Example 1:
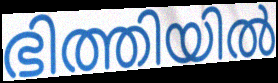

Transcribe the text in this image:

ഭിത്തിയിൽ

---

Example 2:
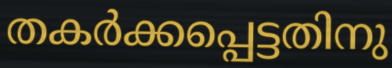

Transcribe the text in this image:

തകർക്കപ്പെട്ടതിനു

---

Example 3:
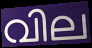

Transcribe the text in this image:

വില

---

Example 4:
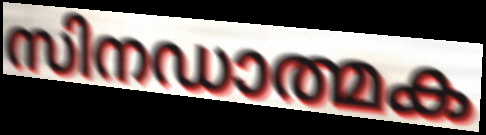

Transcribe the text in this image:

സിനഡാത്മക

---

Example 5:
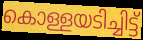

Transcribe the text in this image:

കൊള്ളയടിച്ചിട്ട്